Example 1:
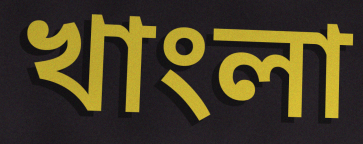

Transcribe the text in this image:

খাংলা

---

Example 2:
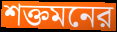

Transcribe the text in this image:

শক্তমনের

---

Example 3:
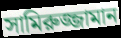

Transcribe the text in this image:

সামিরুজ্জামান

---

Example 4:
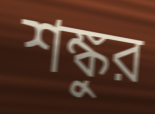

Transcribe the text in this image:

শঙ্কুর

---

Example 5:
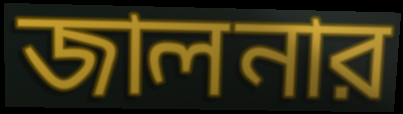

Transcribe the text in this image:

জালনার